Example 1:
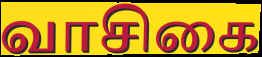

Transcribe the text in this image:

வாசிகை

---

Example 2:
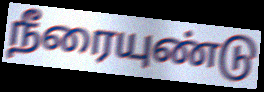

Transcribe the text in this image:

நீரையுண்டு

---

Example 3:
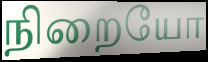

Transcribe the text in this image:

நிறையோ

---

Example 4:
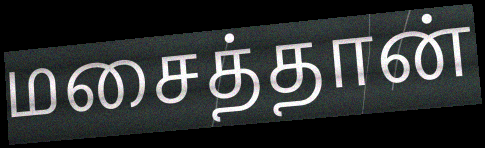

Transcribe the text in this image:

மசைத்தான்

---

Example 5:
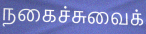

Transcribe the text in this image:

நகைச்சுவைக்